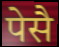
पेसै